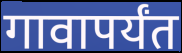
गावापर्यंत